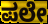
ಪಲೇ